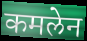
कमलेन